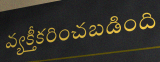
వ్యక్తీకరించబడింది